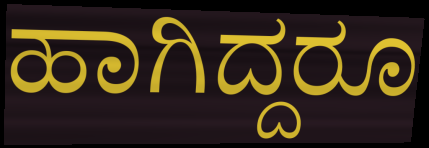
ಹಾಗಿದ್ದರೂ